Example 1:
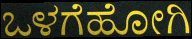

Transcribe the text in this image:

ಒಳಗೆಹೋಗಿ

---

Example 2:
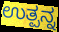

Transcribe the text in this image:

ಉತ್ಪನ್ನ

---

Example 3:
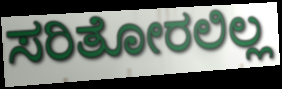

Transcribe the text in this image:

ಸರಿತೋರಲಿಲ್ಲ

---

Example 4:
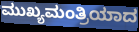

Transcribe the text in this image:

ಮುಖ್ಯಮಂತ್ರಿಯಾದ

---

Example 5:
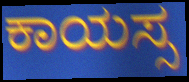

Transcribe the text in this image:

ಕಾಯಸ್ಸ